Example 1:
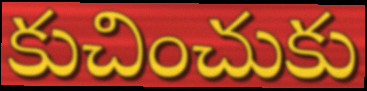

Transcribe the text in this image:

కుచించుకు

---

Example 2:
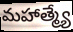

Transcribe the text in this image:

మహాత్మ్యే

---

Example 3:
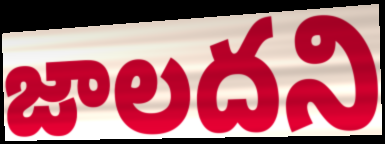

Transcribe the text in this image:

జాలదని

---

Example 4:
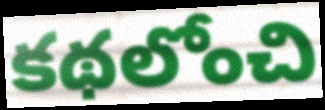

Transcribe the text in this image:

కథలోంచి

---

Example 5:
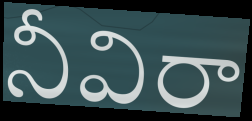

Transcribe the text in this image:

నీవిరా